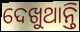
ଦେଖୁଥାନ୍ତି